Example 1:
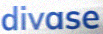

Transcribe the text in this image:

divase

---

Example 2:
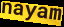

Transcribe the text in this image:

nayam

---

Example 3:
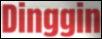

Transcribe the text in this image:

Dinggin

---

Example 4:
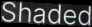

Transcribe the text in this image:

Shaded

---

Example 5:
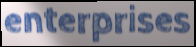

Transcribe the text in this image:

enterprises